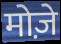
मोज़े